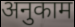
अनुकाम